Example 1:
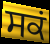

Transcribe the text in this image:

ਸਕਂ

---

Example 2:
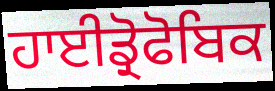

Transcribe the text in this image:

ਹਾਈਡ੍ਰੋਫੋਬਿਕ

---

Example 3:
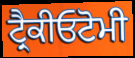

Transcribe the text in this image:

ਟ੍ਰੈਕੀਓਟੋਮੀ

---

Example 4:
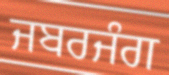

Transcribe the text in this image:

ਜਬਰਜੰਗ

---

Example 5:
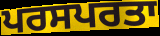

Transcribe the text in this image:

ਪਰਸਪਰਤਾ